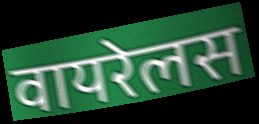
वायरेलस